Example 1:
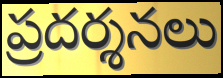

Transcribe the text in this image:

ప్రదర్శనలు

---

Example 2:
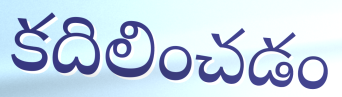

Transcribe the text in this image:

కదిలించడం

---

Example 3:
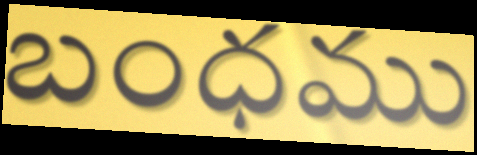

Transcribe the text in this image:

బంధము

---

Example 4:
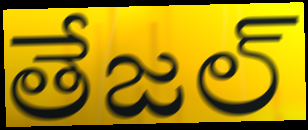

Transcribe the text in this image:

తేజల్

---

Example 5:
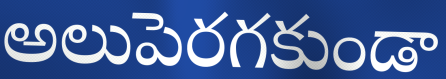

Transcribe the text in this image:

అలుపెరగకుండా